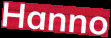
Hanno